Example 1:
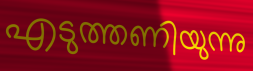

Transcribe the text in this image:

എടുത്തണിയുന്നു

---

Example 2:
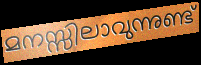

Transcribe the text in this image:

മനസ്സിലാവുന്നുണ്ട്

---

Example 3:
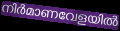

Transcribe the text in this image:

നിർമാണവേളയിൽ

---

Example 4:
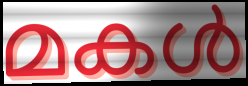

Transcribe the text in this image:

മകൾ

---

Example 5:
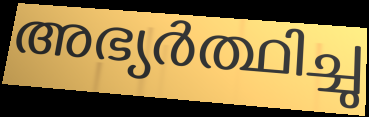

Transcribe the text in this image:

അഭ്യർത്ഥിച്ചു